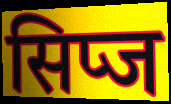
सिप्ज